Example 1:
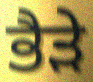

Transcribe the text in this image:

ਭੈਡ਼ੇ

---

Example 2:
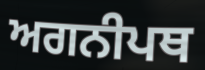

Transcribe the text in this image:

ਅਗਨੀਪਥ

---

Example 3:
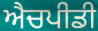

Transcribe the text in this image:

ਐਚਪੀਡੀ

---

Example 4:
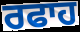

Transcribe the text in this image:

ਰਫਾਹ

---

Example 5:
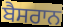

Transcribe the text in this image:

ਬੈਸਰਾਨ